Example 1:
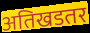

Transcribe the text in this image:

अतिखडतर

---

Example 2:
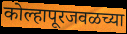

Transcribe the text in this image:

कोल्हापूरजवळच्या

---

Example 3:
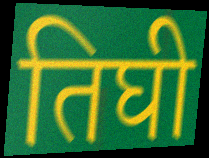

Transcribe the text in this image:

तिघी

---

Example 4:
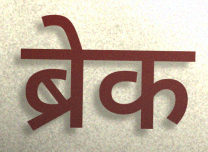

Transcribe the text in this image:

ब्रेक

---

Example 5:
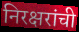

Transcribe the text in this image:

निरक्षरांची